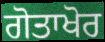
ਗੋਤਾਖੋਰ